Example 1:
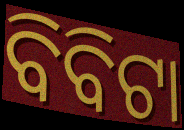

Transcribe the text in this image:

ବିବିଟା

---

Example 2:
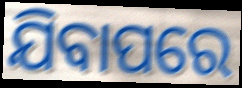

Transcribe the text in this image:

ଯିବାପରେ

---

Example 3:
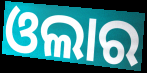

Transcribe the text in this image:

ଓଲାର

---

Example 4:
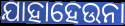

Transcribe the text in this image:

ଯାହାହେଉନା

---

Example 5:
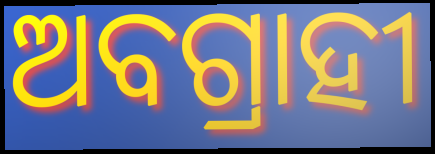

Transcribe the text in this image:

ଅବଗ୍ରାହୀ